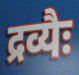
द्रव्यैः